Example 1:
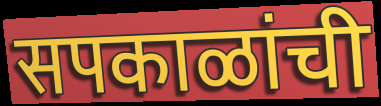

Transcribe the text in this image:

सपकाळांची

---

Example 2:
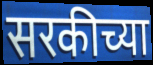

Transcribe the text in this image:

सरकीच्या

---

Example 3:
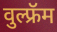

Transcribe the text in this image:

वुल्फ्रॅम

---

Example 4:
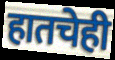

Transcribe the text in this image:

हातचेही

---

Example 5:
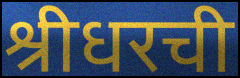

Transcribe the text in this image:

श्रीधरची